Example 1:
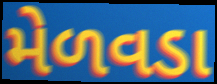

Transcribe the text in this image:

મેળવડા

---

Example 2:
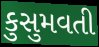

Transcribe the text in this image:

કુસુમવતી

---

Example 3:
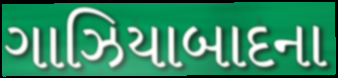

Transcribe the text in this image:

ગાઝિયાબાદના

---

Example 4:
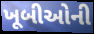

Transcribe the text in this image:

ખૂબીઓની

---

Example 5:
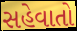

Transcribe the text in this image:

સહેવાતો